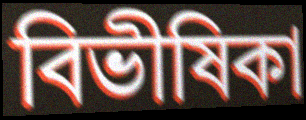
বিভীষিকা